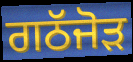
ਗਠੱਜੋੜ